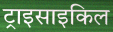
ट्राइसाइकिल